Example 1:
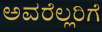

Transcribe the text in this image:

ಅವರೆಲ್ಲರಿಗೆ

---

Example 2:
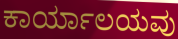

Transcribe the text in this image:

ಕಾರ್ಯಾಲಯವು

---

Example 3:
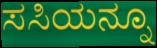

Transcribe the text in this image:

ಸಸಿಯನ್ನೂ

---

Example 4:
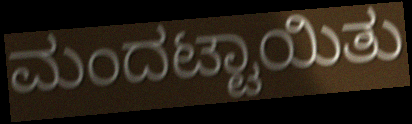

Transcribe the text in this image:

ಮಂದಟ್ಟಾಯಿತು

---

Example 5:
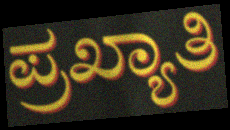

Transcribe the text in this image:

ಪ್ರಖ್ಯಾತಿ